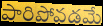
పారిపోవడమే